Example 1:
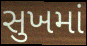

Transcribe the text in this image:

સુખમાં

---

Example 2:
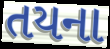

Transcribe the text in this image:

તયના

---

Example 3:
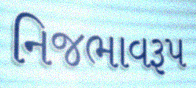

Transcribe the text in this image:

નિજભાવરૂપ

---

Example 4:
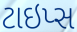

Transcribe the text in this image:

ટાઇપ્સ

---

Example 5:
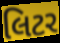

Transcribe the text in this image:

લિટર